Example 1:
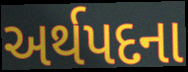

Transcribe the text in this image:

અર્થપદના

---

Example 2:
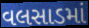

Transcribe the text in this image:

વલસાડમાં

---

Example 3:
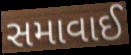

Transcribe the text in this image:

સમાવાઈ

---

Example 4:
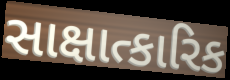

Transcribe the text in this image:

સાક્ષાત્કારિક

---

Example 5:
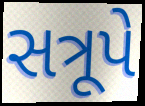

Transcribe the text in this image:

સત્રૂપે